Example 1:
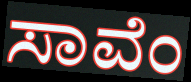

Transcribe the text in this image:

ಸಾವೆಂ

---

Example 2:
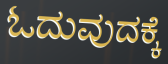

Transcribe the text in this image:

ಓದುವುದಕ್ಕೆ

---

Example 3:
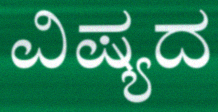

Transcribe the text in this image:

ವಿಷ್ಯದ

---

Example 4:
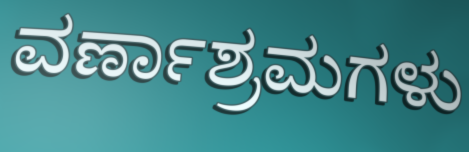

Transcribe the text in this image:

ವರ್ಣಾಶ್ರಮಗಳು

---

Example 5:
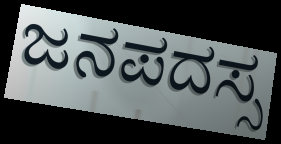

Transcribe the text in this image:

ಜನಪದಸ್ಸ